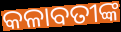
କଳାବତୀଙ୍କ